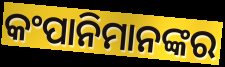
କଂପାନିମାନଙ୍କର